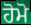
ਹੋਮੋ